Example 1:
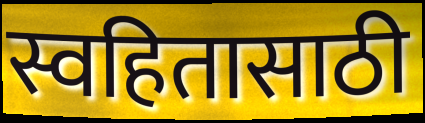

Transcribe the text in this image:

स्वहितासाठी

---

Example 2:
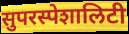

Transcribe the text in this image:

सुपरस्पेशालिटी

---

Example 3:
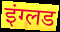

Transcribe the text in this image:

इंग्लड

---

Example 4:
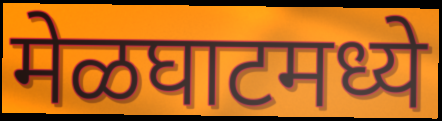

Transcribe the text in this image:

मेळघाटमध्ये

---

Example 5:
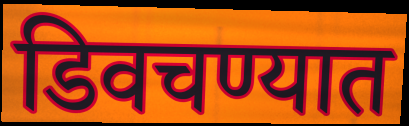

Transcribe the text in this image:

डिवचण्यात